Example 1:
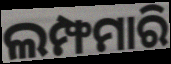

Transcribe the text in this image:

ଲମ୍ଫମାରି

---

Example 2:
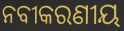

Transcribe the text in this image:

ନବୀକରଣୀୟ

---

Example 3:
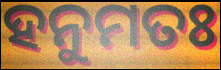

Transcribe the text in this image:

ହନୁମତଃ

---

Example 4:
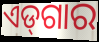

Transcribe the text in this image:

ଏଡ୍‌ଗାର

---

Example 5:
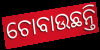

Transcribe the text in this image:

ଚୋବାଉଛନ୍ତି